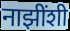
नाझींशी